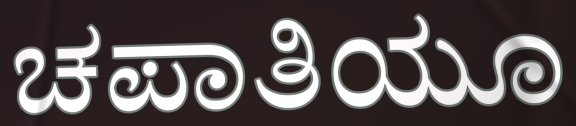
ಚಪಾತಿಯೂ